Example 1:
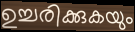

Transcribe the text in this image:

ഉച്ചരിക്കുകയും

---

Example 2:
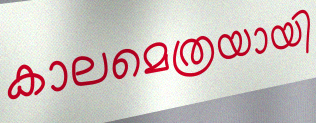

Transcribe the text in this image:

കാലമെത്രയായി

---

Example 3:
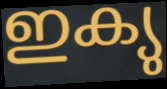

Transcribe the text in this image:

ഇക്യു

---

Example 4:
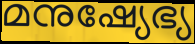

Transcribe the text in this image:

മനുഷ്യേഭ്യ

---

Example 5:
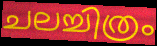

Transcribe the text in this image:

ചലച്ചിത്രം